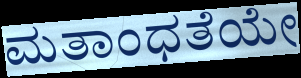
ಮತಾಂಧತೆಯೇ